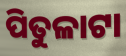
ପିତୁଳାଟା